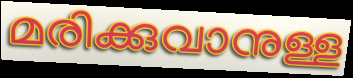
മരിക്കുവാനുള്ള